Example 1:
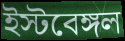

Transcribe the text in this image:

ইস্টবেঙ্গল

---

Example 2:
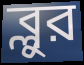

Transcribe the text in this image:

ব্লুর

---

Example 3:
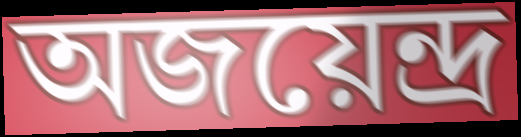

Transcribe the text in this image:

অজয়েন্দ্র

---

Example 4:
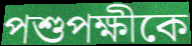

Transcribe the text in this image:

পশুপক্ষীকে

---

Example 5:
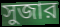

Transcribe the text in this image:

সুজার